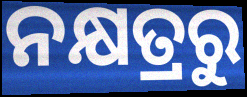
ନକ୍ଷତ୍ରରୁ